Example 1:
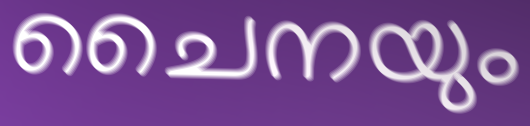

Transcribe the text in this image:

ചൈനയും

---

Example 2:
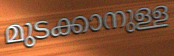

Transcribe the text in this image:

മുടക്കാനുള്ള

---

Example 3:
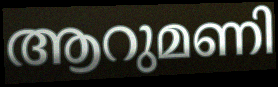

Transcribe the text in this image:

ആറുമണി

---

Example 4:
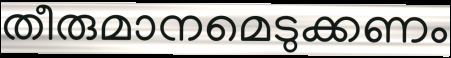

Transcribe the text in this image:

തീരുമാനമെടുക്കണം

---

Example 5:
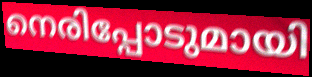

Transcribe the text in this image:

നെരിപ്പോടുമായി